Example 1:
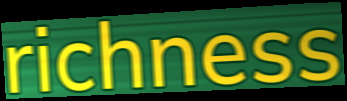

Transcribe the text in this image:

richness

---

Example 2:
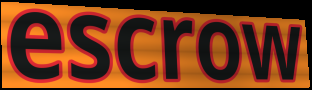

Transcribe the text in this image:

escrow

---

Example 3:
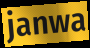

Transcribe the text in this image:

janwa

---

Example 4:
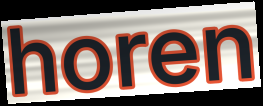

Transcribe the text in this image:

horen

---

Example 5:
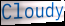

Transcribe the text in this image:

Cloudy